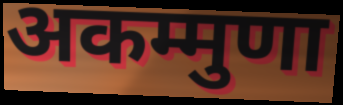
अकम्मुणा